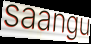
saangu